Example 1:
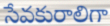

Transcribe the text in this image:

సేవకురాలిగా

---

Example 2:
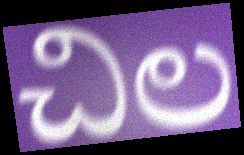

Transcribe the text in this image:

చిల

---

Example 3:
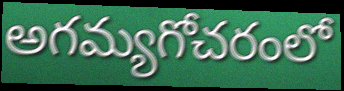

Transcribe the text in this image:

అగమ్యగోచరంలో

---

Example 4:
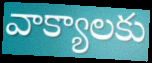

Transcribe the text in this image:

వాక్యాలకు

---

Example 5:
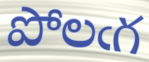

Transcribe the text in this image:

పోలఁగ